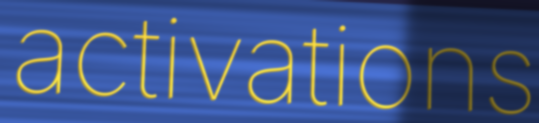
activations